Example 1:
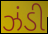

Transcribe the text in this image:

ઝંડી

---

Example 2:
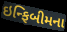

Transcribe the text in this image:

ઇન્ફિબીમના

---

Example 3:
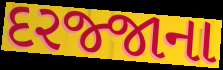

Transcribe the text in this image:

દરજ્જાના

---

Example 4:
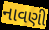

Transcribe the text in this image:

નાવણી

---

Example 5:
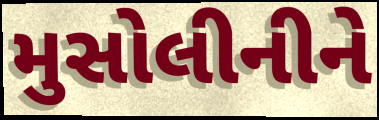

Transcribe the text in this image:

મુસોલીનીને